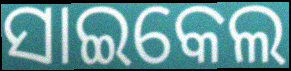
ସାଇକେଲ